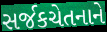
સર્જકચેતનાને